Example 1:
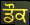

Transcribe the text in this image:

ਡੌਕ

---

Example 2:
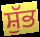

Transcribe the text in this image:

ਸ਼ੁੱਭ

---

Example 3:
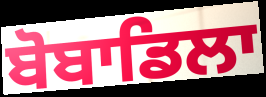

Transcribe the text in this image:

ਬੋਬਾਡਿਲਾ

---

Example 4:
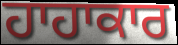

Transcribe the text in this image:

ਹਾਹਾਕਾਰ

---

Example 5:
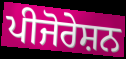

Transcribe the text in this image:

ਪੀਜੋਰੇਸ਼ਨ